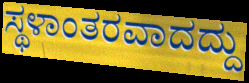
ಸ್ಥಳಾಂತರವಾದದ್ದು